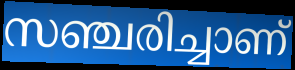
സഞ്ചരിച്ചാണ്